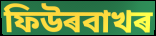
ফিউৰবাখৰ